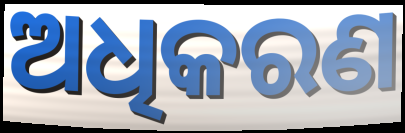
ଅଧିକରଣ